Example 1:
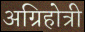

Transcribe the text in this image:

अग्रिहोत्री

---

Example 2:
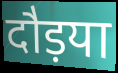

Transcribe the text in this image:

दौड़या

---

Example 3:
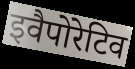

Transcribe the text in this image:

इवैपोरेटिव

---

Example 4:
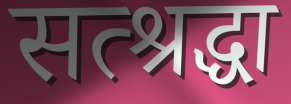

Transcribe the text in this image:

सत्श्रद्धा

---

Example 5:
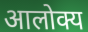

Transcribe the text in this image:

आलोक्य